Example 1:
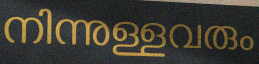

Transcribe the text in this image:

നിന്നുള്ളവരും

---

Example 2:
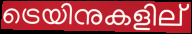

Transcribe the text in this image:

ട്രെയിനുകളില്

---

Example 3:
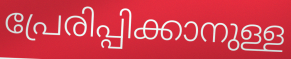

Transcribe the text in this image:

പ്രേരിപ്പിക്കാനുള്ള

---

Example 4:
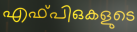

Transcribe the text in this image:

എഫ്പിഒകളുടെ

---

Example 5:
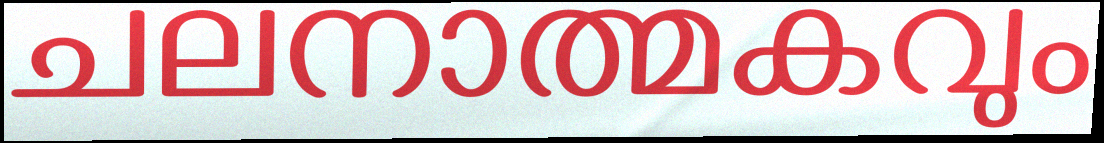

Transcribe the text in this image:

ചലനാത്മകവും